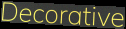
Decorative